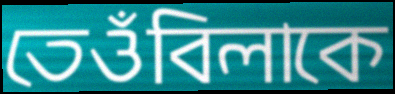
তেওঁবিলাকে